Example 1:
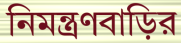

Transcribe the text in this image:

নিমন্ত্রণবাড়ির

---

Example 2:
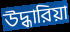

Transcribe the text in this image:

উদ্ধারিয়া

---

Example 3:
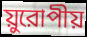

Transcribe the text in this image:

য়ুরোপীয়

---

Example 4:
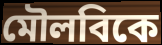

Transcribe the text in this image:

মৌলবিকে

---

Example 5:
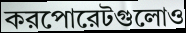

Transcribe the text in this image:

করপোরেটগুলোও